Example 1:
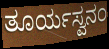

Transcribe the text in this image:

ತೂರ್ಯಸ್ವನಂ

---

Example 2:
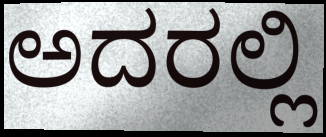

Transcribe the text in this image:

ಅದರಲ್ಲಿ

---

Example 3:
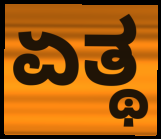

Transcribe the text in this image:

ಏತ್ಥ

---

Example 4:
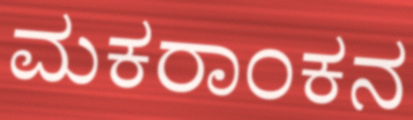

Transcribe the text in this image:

ಮಕರಾಂಕನ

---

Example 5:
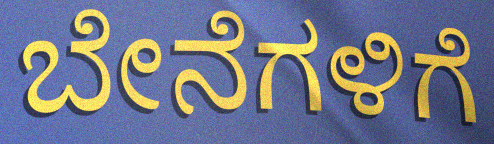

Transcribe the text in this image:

ಬೇನೆಗಳಿಗೆ